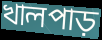
খালপাড়